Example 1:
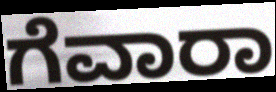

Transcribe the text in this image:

ಗೆವಾರಾ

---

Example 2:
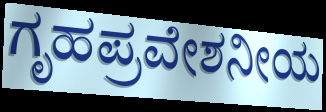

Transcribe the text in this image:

ಗೃಹಪ್ರವೇಶನೀಯ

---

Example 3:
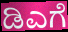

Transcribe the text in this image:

ಡಿಎಗೆ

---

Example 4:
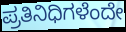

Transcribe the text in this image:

ಪ್ರತಿನಿಧಿಗಳೆಂದೇ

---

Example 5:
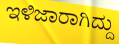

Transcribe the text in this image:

ಇಳಿಜಾರಾಗಿದ್ದು